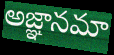
అజ్ఞానమా